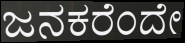
ಜನಕರೆಂದೇ